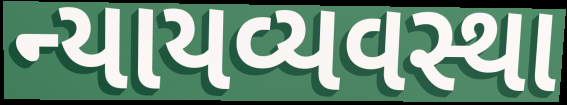
ન્યાયવ્યવસ્થા